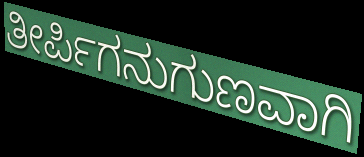
ತೀರ್ಪಿಗನುಗುಣವಾಗಿ